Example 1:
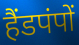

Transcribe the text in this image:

हैंडपंपों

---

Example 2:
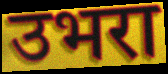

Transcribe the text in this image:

उभरा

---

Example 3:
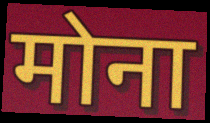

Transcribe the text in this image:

मोना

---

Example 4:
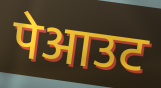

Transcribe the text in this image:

पेआउट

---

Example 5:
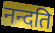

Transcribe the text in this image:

नन्दति